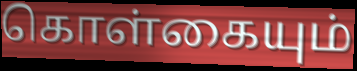
கொள்கையும்